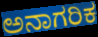
ಅನಾಗರಿಕ